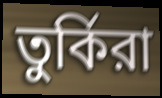
তুর্কিরা